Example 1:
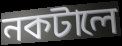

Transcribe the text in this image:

নকটালে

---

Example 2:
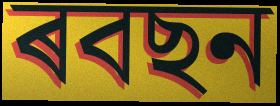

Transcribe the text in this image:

ৰবছন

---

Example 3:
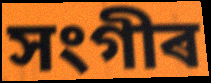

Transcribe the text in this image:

সংগীৰ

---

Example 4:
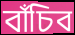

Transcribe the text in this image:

বাঁচিব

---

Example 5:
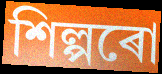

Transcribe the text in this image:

শিল্পৰো